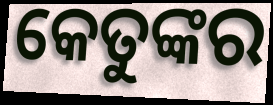
କେତୁଙ୍କର